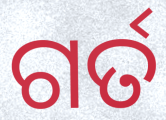
ଗର୍ତ